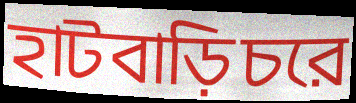
হাটবাড়িচরে